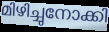
മിഴിച്ചുനോക്കി